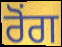
ਰੋਂਗ